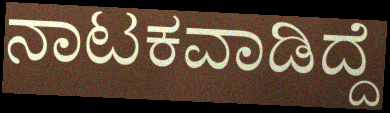
ನಾಟಕವಾಡಿದ್ದೆ